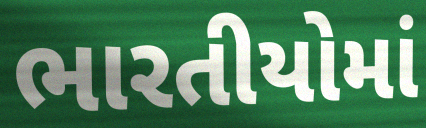
ભારતીયોમાં